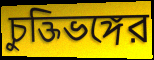
চুক্তিভঙ্গের